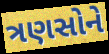
ત્રણસોને